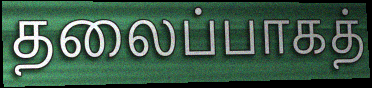
தலைப்பாகத்